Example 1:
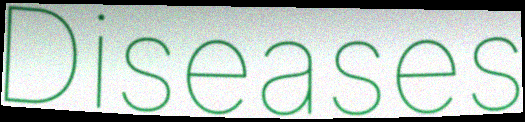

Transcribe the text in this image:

Diseases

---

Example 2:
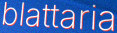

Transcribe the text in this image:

blattaria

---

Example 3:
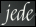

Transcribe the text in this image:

jede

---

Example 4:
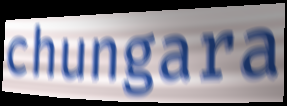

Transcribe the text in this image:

chungara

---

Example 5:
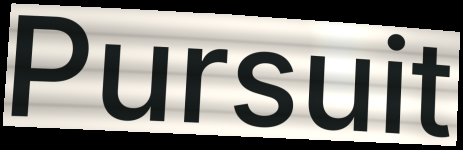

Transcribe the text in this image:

Pursuit